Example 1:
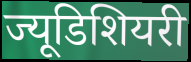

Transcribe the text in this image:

ज्यूडिशियरी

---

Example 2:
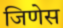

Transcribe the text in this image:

जिणेस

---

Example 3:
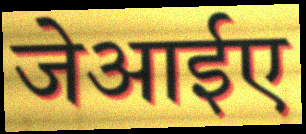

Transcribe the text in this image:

जेआईए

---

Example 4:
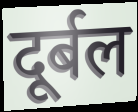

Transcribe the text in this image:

दूर्बल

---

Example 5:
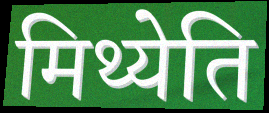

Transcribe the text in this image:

मिथ्येति